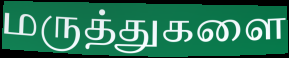
மருத்துகளை